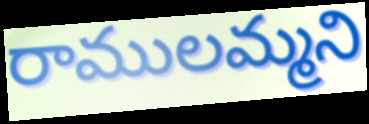
రాములమ్మని